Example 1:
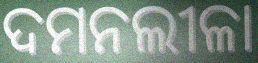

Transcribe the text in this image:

ଦମନଲୀଳା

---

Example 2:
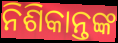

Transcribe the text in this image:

ନିଶିକାନ୍ତଙ୍କ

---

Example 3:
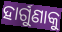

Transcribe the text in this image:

ହାର୍ଗୁଣାକୁ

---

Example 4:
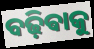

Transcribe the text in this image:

ବଢ଼ିଵାକୁ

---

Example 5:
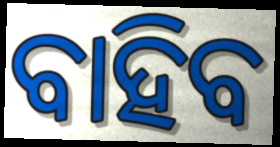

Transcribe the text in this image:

ବାହିବ